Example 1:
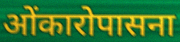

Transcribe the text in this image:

ओंकारोपासना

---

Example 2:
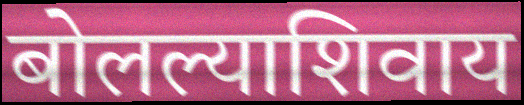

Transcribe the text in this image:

बोलल्याशिवाय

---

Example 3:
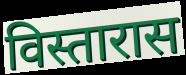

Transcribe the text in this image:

विस्तारास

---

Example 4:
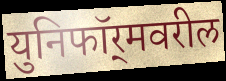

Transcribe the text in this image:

युनिफॉर्मवरील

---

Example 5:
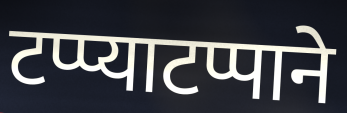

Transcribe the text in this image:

टप्प्याटप्पाने